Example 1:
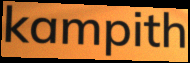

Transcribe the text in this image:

kampith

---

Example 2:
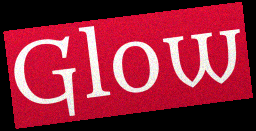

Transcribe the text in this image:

Glow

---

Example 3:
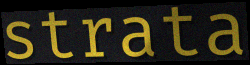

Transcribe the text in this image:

strata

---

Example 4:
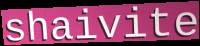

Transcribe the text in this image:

shaivite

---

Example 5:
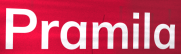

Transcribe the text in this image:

Pramila